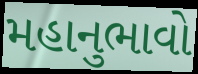
મહાનુભાવો